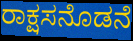
ರಾಕ್ಷಸನೊಡನೆ